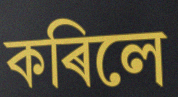
কৰিলে